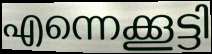
എന്നെക്കൂട്ടി